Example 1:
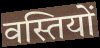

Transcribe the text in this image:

वस्तियों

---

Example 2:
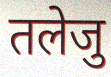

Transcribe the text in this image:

तलेजु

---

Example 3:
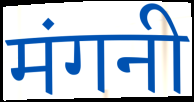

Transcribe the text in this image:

मंगनी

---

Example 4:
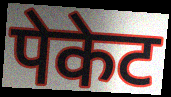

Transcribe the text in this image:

पेकेट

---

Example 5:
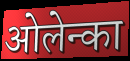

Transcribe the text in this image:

ओलेन्का